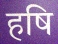
हषि